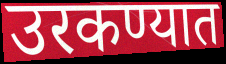
उरकण्यात